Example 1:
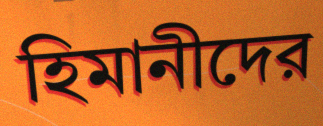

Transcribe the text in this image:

হিমানীদের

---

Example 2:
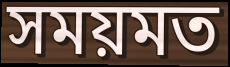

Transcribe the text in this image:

সময়মত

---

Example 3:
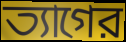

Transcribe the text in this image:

ত্যাগের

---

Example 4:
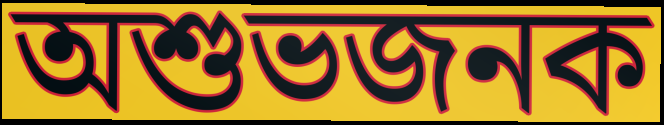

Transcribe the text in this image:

অশুভজনক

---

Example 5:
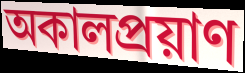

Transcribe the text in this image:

অকালপ্রয়াণ